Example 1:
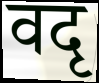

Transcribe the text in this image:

वदृ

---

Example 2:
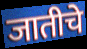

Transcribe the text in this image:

जातीचे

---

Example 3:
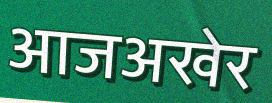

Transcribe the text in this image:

आजअखेर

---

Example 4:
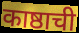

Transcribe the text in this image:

काष्ठाची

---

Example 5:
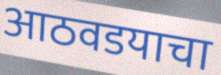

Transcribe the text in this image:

आठवडयाचा